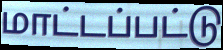
மாட்டப்பட்டு